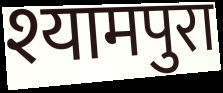
श्यामपुरा